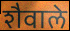
शैवाले